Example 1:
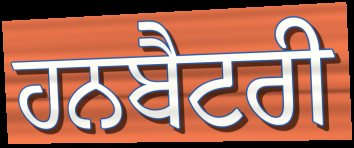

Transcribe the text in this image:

ਹਨਬੈਟਰੀ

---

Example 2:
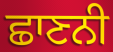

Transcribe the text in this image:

ਛਾਣਨੀ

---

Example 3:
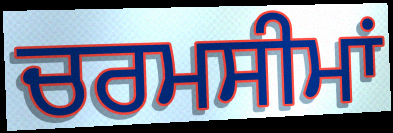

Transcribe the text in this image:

ਚਰਮਸੀਮਾਂ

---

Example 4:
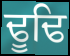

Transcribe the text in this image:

ਢੂਢਿ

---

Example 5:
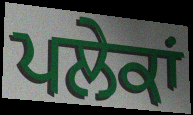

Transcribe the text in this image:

ਪਲੇਕਾਂ